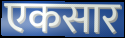
एकसार